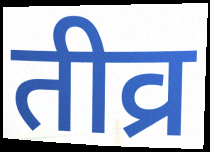
तीव्र